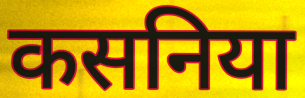
कसनिया